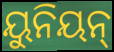
ୟୁନିୟନ୍